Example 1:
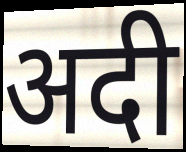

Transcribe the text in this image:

अदी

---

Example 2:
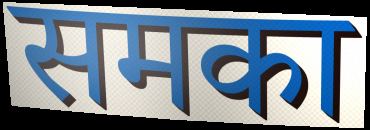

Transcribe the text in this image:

समका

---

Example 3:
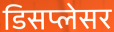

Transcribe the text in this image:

डिसप्लेसर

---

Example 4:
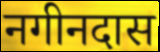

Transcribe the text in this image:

नगीनदास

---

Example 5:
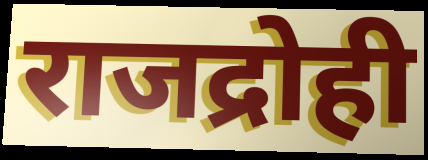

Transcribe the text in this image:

राजद्रोही